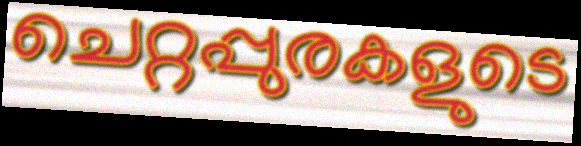
ചെറ്റപ്പുരകളുടെ